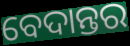
ବେଦାନ୍ତର